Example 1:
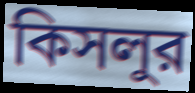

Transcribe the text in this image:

কিসলুর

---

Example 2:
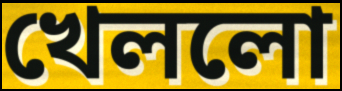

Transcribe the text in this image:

খেললো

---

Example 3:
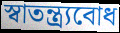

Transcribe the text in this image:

স্বাতন্ত্র্যবোধ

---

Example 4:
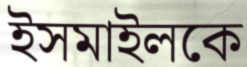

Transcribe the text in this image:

ইসমাইলকে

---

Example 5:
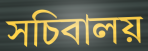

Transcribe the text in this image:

সচিবালয়